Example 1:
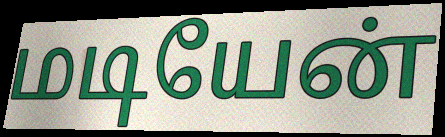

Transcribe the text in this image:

மடியேன்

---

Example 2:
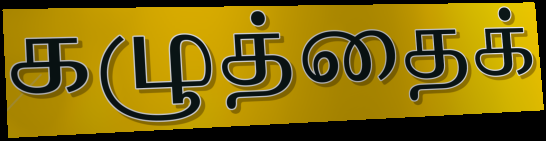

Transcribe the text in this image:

கழுத்தைக்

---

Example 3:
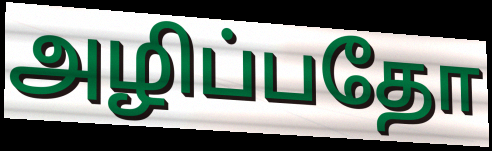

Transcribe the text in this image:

அழிப்பதோ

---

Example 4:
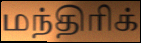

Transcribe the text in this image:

மந்திரிக்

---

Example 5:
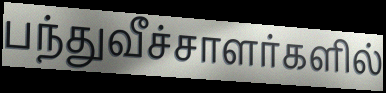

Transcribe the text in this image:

பந்துவீச்சாளர்களில்